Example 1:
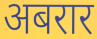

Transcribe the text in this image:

अबरार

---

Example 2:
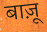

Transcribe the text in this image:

बाज़ू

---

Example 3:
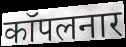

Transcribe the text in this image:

कॉपलनार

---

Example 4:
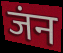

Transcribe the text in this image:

जंन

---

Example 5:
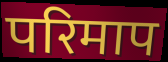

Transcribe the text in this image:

परिमाप